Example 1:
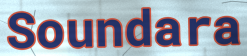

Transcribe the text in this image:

Soundara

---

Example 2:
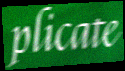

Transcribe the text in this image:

plicate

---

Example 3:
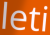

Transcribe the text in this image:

leti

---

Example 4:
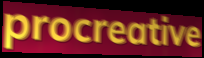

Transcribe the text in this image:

procreative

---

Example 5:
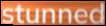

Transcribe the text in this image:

stunned